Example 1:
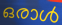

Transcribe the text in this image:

ഒരാൾ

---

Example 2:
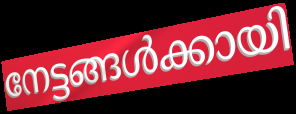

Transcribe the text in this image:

നേട്ടങ്ങൾക്കായി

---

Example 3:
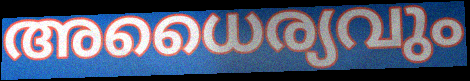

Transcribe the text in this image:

അധൈര്യവും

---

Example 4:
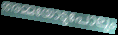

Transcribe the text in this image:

അമ്മയോടുപോലും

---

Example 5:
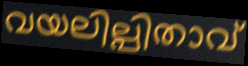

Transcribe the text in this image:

വയലില്പിതാവ്